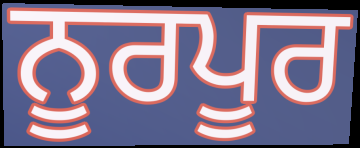
ਨੂਰਪੂਰ